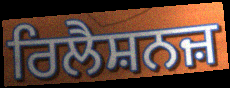
ਰਿਲੈਸ਼ਨਜ਼